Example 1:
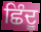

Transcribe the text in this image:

ਛਿੰਦੂ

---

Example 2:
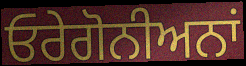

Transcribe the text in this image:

ਓਰੇਗੋਨੀਅਨਾਂ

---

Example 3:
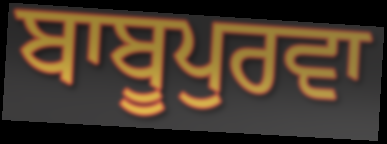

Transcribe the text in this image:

ਬਾਬੂਪੁਰਵਾ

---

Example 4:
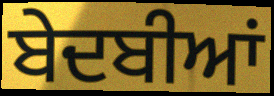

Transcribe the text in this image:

ਬੇਦਬੀਆਂ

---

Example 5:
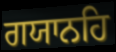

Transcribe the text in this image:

ਗਯਾਨਹਿ